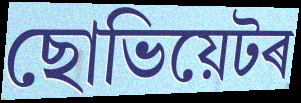
ছোভিয়েটৰ